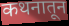
कथनातून